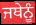
ਜਥੇਨੂੰ